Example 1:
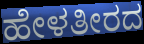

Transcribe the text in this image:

ಹೇಳತೀರದ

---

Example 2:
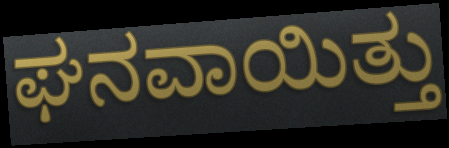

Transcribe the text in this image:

ಘನವಾಯಿತ್ತು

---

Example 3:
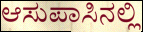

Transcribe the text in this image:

ಆಸುಪಾಸಿನಲ್ಲಿ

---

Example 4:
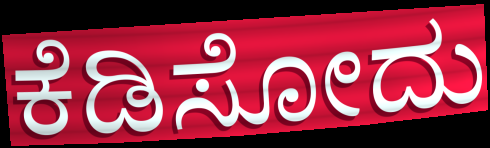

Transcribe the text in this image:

ಕೆಡಿಸೋದು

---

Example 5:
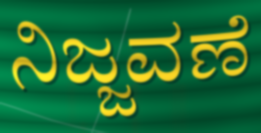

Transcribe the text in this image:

ನಿಜ್ಜವಣೆ